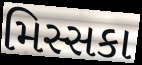
મિસ્સકા